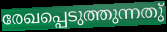
രേഖപ്പെടുത്തുന്നതു്